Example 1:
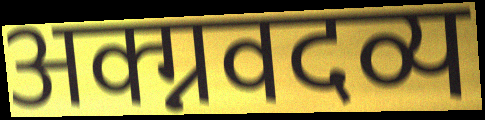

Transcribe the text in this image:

अक्ग्नवदव्य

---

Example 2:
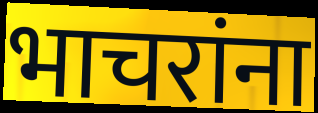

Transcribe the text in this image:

भाचरांना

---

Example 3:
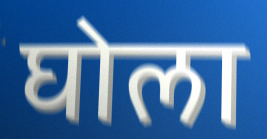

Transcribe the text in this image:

घोला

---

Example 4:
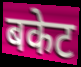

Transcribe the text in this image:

बकेट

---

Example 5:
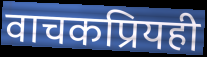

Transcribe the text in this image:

वाचकप्रियही